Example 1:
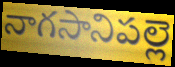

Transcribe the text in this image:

నాగసానిపల్లె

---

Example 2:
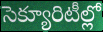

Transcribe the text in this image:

సెక్యూరిటీల్లో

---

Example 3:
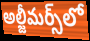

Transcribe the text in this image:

అల్జీమర్స్‌లో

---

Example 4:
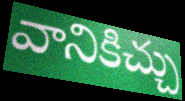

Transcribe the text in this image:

వానికిచ్చు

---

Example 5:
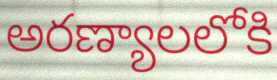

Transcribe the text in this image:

అరణ్యాలలోకి